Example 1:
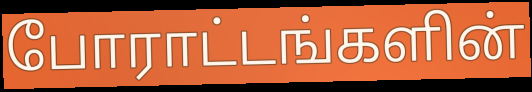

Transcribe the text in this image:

போராட்டங்களின்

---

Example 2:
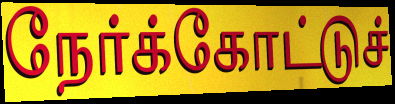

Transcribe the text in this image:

நேர்க்கோட்டுச்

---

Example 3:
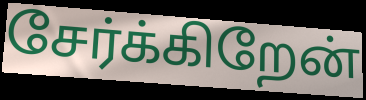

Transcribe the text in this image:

சேர்க்கிறேன்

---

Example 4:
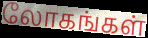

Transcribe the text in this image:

லோகங்கள்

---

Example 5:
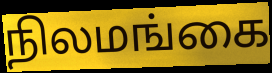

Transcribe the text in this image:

நிலமங்கை